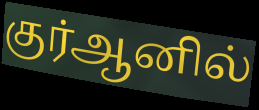
குர்ஆனில்